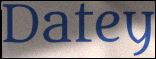
Datey